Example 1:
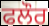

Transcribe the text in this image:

ਫਲੌਰ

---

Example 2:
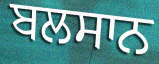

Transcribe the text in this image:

ਬਲਸਾਨ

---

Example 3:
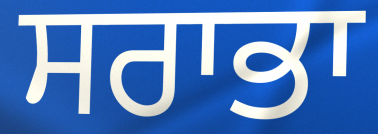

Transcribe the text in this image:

ਸਰਾਭਾ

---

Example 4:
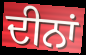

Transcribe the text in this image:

ਦੀਨਾਂ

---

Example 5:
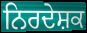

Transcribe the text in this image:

ਨਿਰਦੇਸ਼ਕ